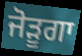
ਜੋੜੂਗਾ